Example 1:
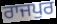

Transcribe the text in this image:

ਰਾਜਪੁਰ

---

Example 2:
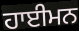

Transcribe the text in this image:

ਹਾਈਮਨ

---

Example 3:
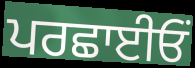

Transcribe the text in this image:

ਪਰਛਾਈਓਂ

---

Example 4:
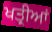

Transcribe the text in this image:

ਖਤ੍ਰੀਆਂ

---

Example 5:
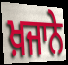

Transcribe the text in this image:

ਖ਼ਜਾਨੇ